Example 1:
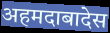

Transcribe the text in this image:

अहमदाबादेस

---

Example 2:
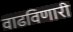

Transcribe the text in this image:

वाढविणारी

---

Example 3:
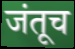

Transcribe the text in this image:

जंतूच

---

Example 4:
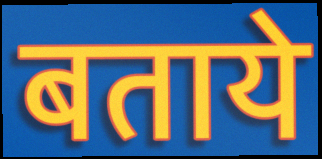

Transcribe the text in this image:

बताये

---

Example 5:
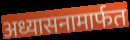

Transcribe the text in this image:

अध्यासनामार्फत